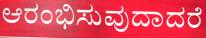
ಆರಂಭಿಸುವುದಾದರೆ